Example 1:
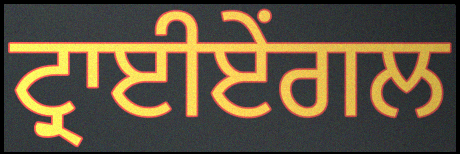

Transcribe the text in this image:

ਟ੍ਰਾਈਏਂਗਲ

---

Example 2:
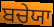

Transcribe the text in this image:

ਬਚੇਯਾ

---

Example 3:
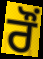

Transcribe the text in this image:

ਰੌਂ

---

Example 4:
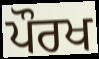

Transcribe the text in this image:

ਪੌਰਖ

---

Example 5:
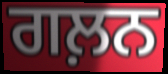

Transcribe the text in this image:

ਗਲ਼ਨ